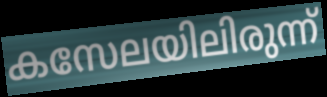
കസേലയിലിരുന്ന്